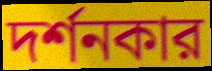
দর্শনকার